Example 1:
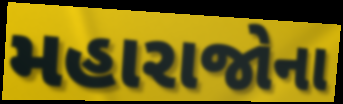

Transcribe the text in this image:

મહારાજોના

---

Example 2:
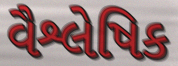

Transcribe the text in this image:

વૈશ્લેષિક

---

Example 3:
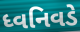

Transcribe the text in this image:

ધ્વનિવડે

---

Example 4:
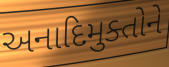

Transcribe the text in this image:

અનાદિમુક્તોને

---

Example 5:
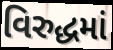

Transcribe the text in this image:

વિરુદ્ધમાં